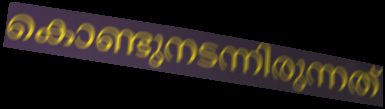
കൊണ്ടുനടന്നിരുന്നത്